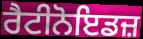
ਰੈਟੀਨੋਇਡਜ਼